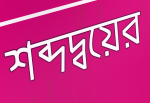
শব্দদ্বয়ের